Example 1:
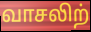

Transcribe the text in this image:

வாசலிற்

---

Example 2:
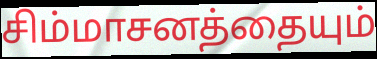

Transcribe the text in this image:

சிம்மாசனத்தையும்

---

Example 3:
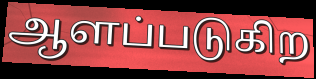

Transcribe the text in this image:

ஆளப்படுகிற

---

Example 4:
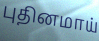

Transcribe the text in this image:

புதினமாய்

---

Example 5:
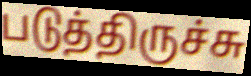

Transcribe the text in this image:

படுத்திருச்சு